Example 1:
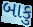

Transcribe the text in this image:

બાકુ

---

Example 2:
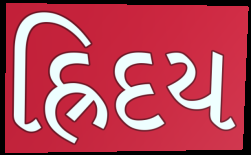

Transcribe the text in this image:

હ્રિદય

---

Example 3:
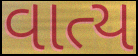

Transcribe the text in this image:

વાત્ય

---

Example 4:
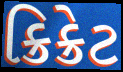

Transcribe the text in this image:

ક્રિક્રેટ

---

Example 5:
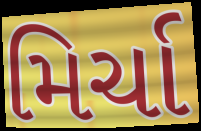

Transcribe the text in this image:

મિર્ચા